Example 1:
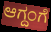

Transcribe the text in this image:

ಆಗ್ದಂಗೆ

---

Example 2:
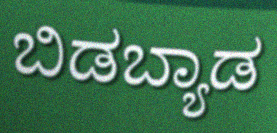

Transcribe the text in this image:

ಬಿಡಬ್ಯಾಡ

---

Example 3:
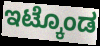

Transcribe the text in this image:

ಇಟ್ಕೊಂಡ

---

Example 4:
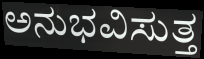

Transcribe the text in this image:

ಅನುಭವಿಸುತ್ತ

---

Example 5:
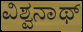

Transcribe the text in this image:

ವಿಶ್ವನಾಥ್